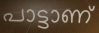
പാട്ടാണ്